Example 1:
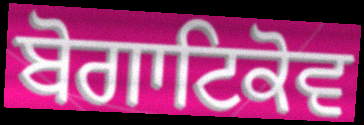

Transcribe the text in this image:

ਬੋਗਾਟਿਕੋਵ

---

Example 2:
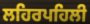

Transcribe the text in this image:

ਲਹਿਰਪਹਿਲੀ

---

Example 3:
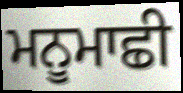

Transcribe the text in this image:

ਮਨੂਮਾਛੀ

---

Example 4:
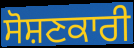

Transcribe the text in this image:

ਸੋਸ਼ਣਕਾਰੀ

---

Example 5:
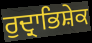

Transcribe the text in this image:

ਰੁਦ੍ਰਾਭਿਸ਼ੇਕ